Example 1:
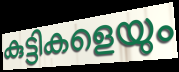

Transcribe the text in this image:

കുട്ടികളെയും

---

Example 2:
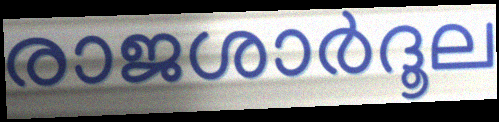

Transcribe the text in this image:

രാജശാർദൂല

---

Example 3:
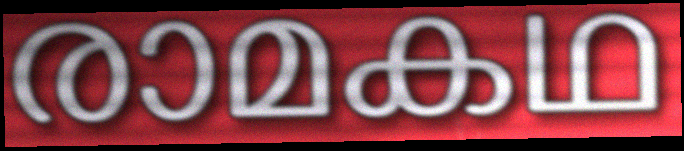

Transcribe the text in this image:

രാമകഥ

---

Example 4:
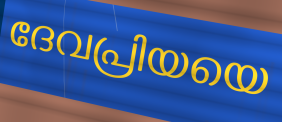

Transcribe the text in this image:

ദേവപ്രിയയെ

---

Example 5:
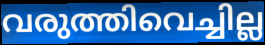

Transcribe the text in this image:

വരുത്തിവെച്ചില്ല